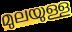
മുലയുള്ള